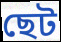
ছেট